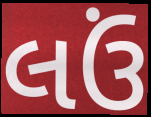
લઉં